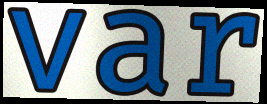
var